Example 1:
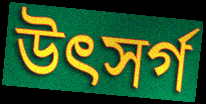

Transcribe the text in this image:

উৎসৰ্গ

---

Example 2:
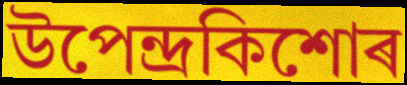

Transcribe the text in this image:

উপেন্দ্ৰকিশোৰ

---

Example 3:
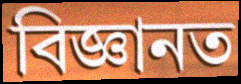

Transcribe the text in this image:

বিজ্ঞানত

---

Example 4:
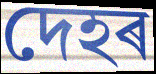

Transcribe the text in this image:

দেহৰ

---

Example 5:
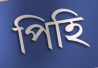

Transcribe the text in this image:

পিহি